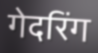
गेदरिंग